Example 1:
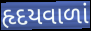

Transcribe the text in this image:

હૃદયવાળાં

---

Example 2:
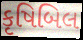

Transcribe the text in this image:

કૃષિબિલ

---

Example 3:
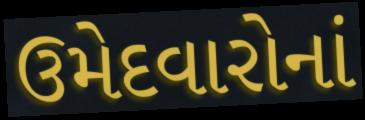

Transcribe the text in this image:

ઉમેદવારોનાં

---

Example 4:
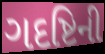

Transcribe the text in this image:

ગદષ્ટિની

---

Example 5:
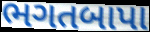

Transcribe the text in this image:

ભગતબાપા